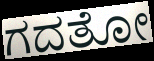
ಗದತೋ